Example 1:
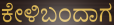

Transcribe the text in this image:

ಕೇಳಿಬಂದಾಗ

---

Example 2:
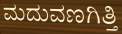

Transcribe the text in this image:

ಮದುವಣಗಿತ್ತಿ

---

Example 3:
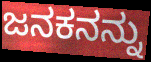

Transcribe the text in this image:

ಜನಕನನ್ನು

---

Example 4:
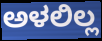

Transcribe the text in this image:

ಅಳಲಿಲ್ಲ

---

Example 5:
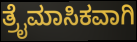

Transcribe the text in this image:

ತ್ರೈಮಾಸಿಕವಾಗಿ